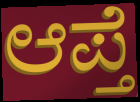
ಆಪ್ತೆ